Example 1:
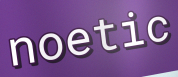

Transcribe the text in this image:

noetic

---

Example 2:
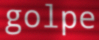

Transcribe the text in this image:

golpe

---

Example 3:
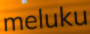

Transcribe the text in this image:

meluku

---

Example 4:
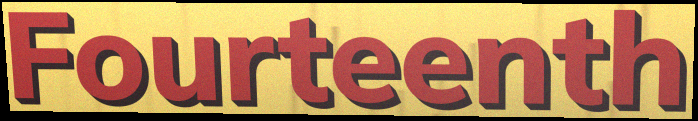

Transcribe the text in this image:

Fourteenth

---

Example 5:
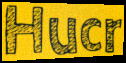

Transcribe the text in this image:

Hucr